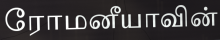
ரோமனீயாவின்